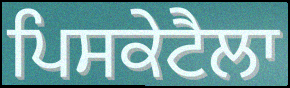
ਪਿਸਕੇਟੈਲਾ